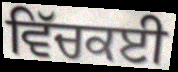
ਵਿੱਚਕਈ